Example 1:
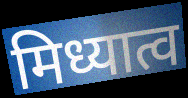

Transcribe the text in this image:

मिध्यात्व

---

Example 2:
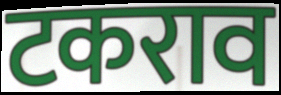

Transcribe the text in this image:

टकराव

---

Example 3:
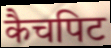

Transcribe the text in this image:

कैचपिट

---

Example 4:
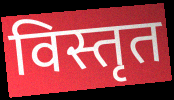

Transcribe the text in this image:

विस्तृत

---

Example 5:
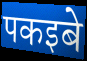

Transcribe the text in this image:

पकइबे